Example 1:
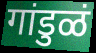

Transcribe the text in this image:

गांडुळं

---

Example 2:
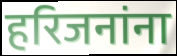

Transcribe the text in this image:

हरिजनांना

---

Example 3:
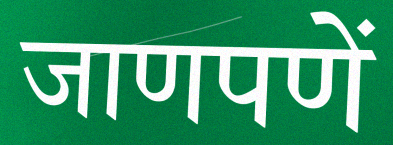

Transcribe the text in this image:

जाणपणें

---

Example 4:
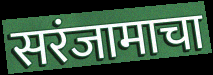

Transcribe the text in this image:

सरंजामाचा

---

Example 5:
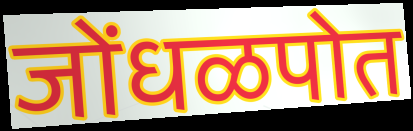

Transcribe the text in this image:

जोंधळपोत